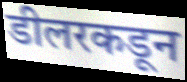
डीलरकडून